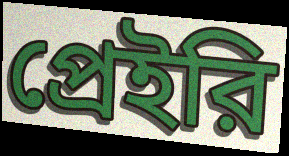
প্রেইরি